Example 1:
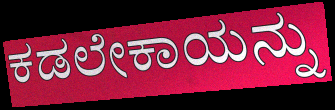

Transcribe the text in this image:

ಕಡಲೇಕಾಯನ್ನು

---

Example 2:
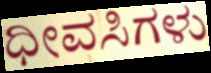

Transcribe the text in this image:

ಧೀವಸಿಗಳು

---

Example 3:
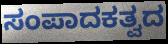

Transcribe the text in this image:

ಸಂಪಾದಕತ್ವದ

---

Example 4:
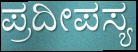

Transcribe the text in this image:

ಪ್ರದೀಪಸ್ಯ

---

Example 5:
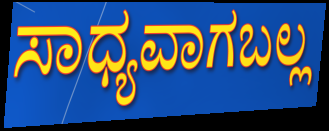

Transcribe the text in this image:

ಸಾಧ್ಯವಾಗಬಲ್ಲ